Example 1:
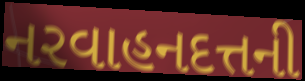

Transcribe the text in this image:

નરવાહનદત્તની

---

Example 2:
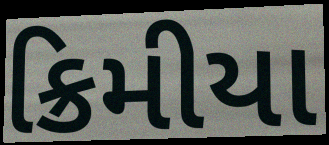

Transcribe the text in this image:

ક્રિમીયા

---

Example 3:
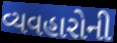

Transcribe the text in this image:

વ્યવહારોની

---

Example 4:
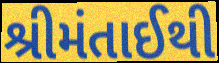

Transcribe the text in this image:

શ્રીમંતાઈથી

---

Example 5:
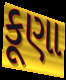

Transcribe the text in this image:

કૂણા